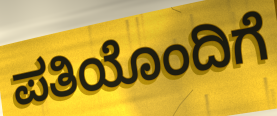
ಪತಿಯೊಂದಿಗೆ